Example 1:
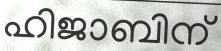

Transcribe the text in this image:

ഹിജാബിന്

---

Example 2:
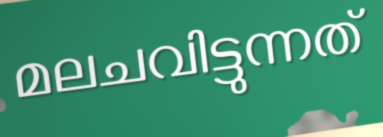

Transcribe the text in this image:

മലചവിട്ടുന്നത്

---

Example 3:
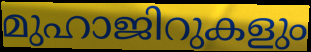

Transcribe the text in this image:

മുഹാജിറുകളും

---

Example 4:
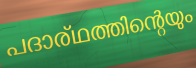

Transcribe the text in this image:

പദാര്ഥത്തിന്റെയും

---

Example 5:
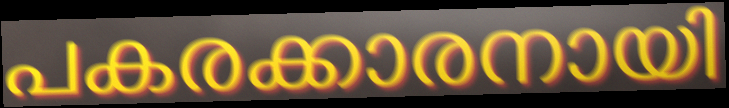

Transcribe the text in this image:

പകരക്കാരനായി